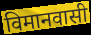
विमानवासी